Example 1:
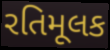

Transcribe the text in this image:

રતિમૂલક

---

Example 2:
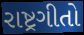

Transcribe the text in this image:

રાષ્ટ્રગીતો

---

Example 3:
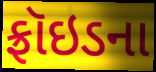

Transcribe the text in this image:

ફ્રૉઇડના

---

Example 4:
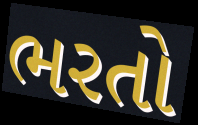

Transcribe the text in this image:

ભરતો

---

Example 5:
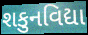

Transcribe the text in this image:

શકુનવિદ્યા